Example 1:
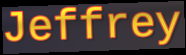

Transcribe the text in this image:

Jeffrey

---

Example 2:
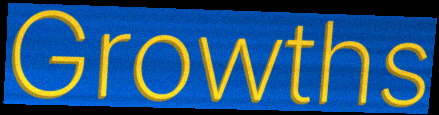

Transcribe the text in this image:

Growths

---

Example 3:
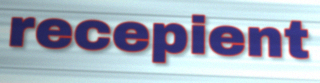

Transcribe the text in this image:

recepient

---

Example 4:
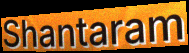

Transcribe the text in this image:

Shantaram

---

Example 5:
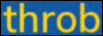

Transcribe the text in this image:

throb